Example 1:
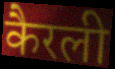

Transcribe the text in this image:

कैरली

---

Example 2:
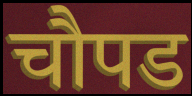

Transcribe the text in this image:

चौपड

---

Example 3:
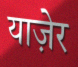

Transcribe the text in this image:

याज़ेर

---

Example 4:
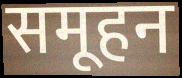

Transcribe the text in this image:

समूहन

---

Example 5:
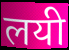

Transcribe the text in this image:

लयी